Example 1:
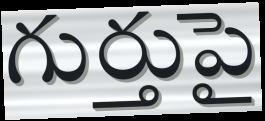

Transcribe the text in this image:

గుర్తుపై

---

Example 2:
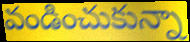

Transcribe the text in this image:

వండించుకున్నా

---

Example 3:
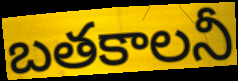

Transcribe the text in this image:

బతకాలనీ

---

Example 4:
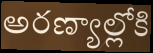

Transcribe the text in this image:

అరణ్యాల్లోకి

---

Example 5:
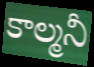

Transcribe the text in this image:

కాల్మనీ